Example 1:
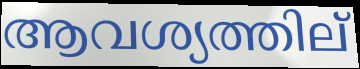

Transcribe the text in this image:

ആവശ്യത്തില്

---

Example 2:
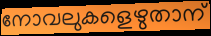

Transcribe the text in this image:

നോവലുകളെഴുതാന്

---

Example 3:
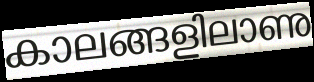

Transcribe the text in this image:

കാലങ്ങളിലാണു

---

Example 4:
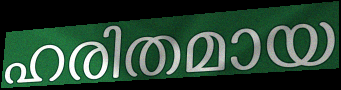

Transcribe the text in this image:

ഹരിതമായ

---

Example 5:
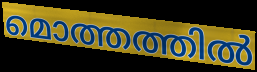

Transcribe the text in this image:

മൊത്തത്തിൽ